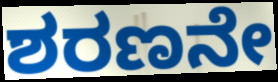
ಶರಣನೇ